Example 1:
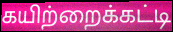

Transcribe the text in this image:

கயிற்றைக்கட்டி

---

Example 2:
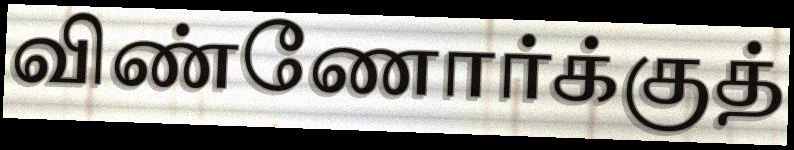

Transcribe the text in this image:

விண்ணோர்க்குத்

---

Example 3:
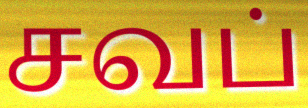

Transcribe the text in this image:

சவப்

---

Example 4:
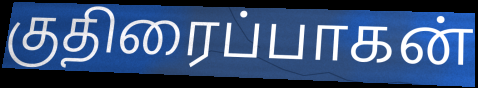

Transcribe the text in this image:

குதிரைப்பாகன்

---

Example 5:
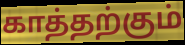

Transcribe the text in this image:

காத்தற்கும்